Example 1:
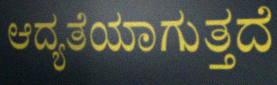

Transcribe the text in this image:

ಆದ್ಯತೆಯಾಗುತ್ತದೆ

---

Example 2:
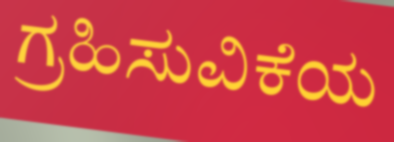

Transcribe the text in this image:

ಗ್ರಹಿಸುವಿಕೆಯ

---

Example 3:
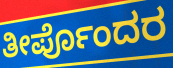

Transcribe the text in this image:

ತೀರ್ಪೊಂದರ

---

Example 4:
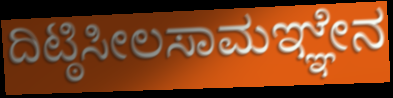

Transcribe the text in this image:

ದಿಟ್ಠಿಸೀಲಸಾಮಞ್ಞೇನ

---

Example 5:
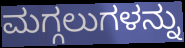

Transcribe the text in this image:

ಮಗ್ಗಲುಗಳನ್ನು